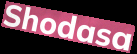
Shodasa